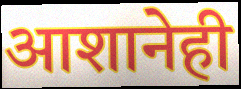
आशानेही